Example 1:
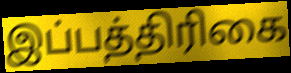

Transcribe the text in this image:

இப்பத்திரிகை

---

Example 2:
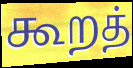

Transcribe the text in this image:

கூறத்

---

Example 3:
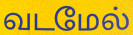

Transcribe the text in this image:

வடமேல்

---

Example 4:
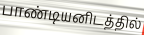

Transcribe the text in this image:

பாண்டியனிடத்தில்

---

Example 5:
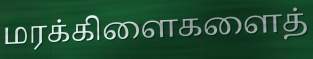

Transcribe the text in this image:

மரக்கிளைகளைத்